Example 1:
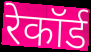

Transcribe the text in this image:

रेकॉर्ड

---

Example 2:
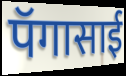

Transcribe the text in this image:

पॅगासाई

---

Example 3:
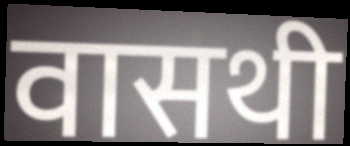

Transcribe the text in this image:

वासथी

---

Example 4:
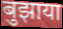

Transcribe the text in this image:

बुझाया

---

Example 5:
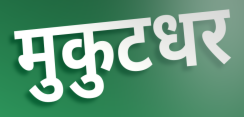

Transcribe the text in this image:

मुकुटधर